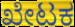
ಖೇಟಕ